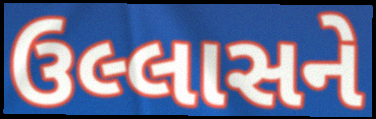
ઉલ્લાસને